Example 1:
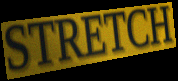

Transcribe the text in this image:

STRETCH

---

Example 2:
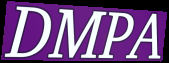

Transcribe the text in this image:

DMPA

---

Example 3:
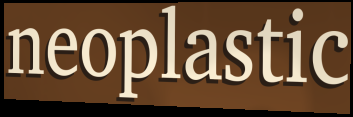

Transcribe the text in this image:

neoplastic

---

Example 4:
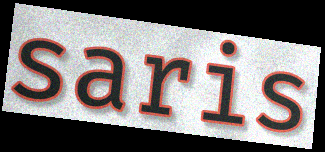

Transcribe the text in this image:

saris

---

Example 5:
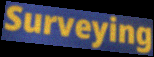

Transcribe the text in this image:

Surveying